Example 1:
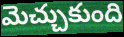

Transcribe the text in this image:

మెచ్చుకుంది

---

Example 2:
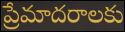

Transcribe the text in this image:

ప్రేమాదరాలకు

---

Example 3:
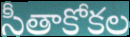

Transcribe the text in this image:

సీతాకోకల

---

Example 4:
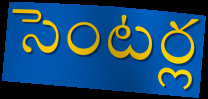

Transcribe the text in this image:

సెంటర్ల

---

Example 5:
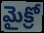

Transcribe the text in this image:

మైక్రో